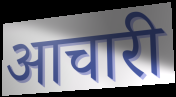
आचारी